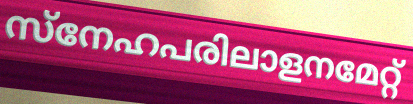
സ്നേഹപരിലാളനമേറ്റ്